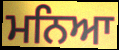
ਮਨਿਆ